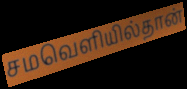
சமவெளியில்தான்